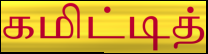
கமிட்டித்